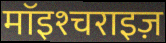
मॉइश्चराइज़